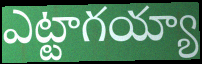
ఎట్టాగయ్యా